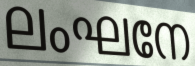
ലംഘനേ